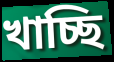
খাচ্ছি